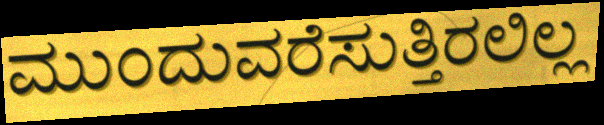
ಮುಂದುವರೆಸುತ್ತಿರಲಿಲ್ಲ